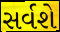
સર્વશે